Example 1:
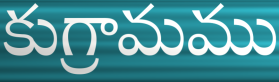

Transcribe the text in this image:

కుగ్రామము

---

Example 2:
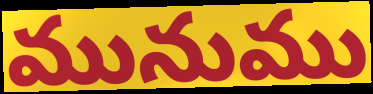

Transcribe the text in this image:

మునుము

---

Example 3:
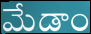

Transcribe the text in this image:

మేడాం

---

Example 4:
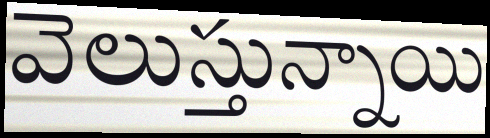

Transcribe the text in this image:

వెలుస్తున్నాయి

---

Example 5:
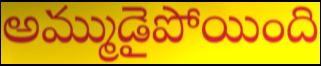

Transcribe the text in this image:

అమ్ముడైపోయింది